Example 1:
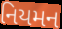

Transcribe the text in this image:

નિયમન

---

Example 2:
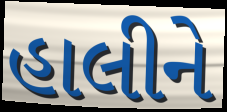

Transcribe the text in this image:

હાલીને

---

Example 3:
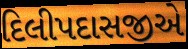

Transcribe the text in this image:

દિલીપદાસજીએ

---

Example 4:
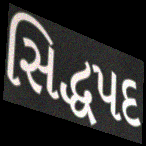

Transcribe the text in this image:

સિદ્ધપદ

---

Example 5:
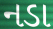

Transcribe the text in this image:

નડા